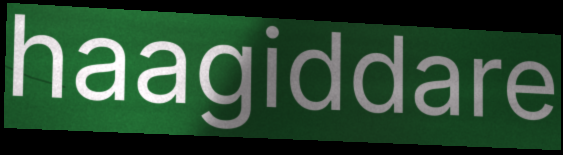
haagiddare